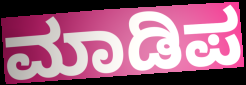
ಮಾಡಿಪ